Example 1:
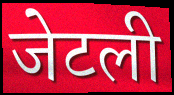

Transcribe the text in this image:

जेटली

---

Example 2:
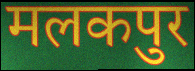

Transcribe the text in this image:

मलकपुर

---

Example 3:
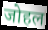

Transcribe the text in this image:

जोहल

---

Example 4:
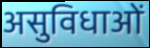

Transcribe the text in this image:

असुविधाओं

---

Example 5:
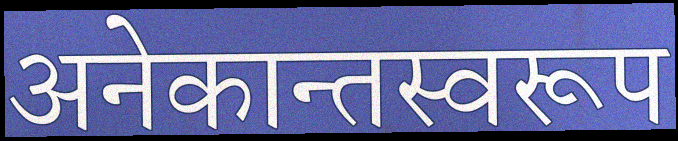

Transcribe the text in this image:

अनेकान्तस्वरूप